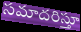
సమాదరిస్తూ